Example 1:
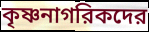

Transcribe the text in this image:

কৃষ্ণনাগরিকদের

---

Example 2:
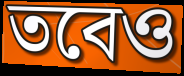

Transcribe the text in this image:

তবেও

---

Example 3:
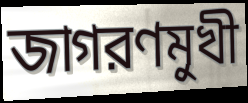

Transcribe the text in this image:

জাগরণমুখী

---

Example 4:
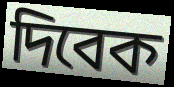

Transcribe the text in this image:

দিবেক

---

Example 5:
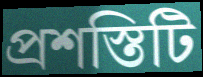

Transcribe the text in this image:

প্রশস্তিটি